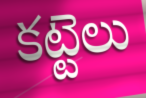
కట్టెలు